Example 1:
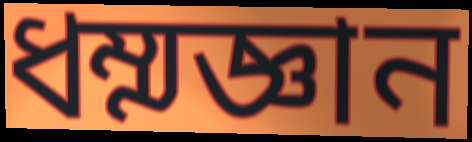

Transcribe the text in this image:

ধম্মজ্ঞান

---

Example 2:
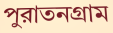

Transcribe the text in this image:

পুরাতনগ্রাম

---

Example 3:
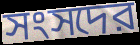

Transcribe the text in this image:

সংসদের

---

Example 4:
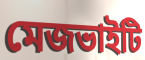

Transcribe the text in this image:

মেজভাইটি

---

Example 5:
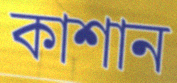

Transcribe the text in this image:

কাশান